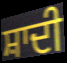
ਸ਼ਾਦੀ